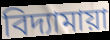
বিদ্যামায়া